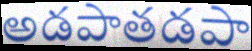
అడపాతడపా